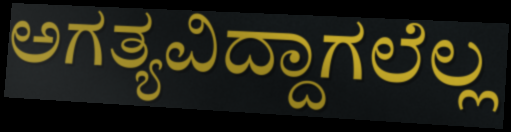
ಅಗತ್ಯವಿದ್ದಾಗಲೆಲ್ಲ